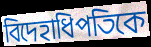
বিদেহাধিপতিকে